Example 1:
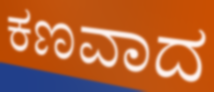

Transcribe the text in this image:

ಕಣವಾದ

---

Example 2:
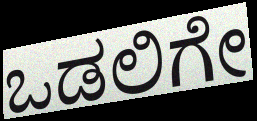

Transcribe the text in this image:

ಒಡಲಿಗೇ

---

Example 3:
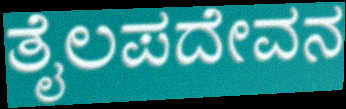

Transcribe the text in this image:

ತೈಲಪದೇವನ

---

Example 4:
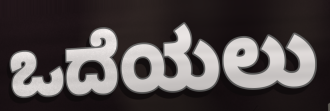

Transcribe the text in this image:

ಒದೆಯಲು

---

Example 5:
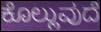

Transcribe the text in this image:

ಕೊಲ್ಲುವುದೆ